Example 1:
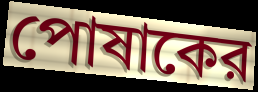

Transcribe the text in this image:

পোষাকের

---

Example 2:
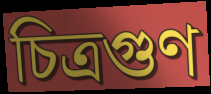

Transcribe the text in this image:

চিত্রগুণ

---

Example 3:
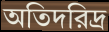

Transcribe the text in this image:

অতিদরিদ্র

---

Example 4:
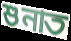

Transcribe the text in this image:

শুনাত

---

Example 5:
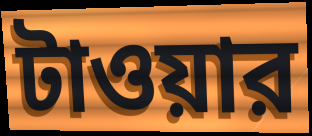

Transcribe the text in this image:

টাওয়ার